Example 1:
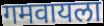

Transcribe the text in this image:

गमवायला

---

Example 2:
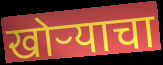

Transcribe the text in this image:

खोऱ्याचा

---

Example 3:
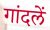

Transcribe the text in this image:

गांदलें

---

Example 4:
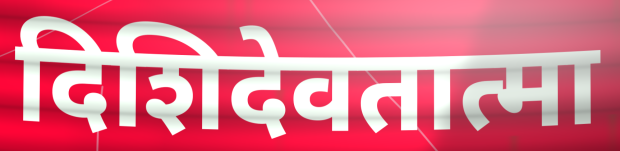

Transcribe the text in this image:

दिशिदेवतात्मा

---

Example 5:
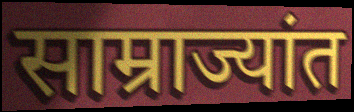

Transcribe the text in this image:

साम्राज्यांत